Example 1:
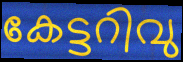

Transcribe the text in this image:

കേട്ടറിവു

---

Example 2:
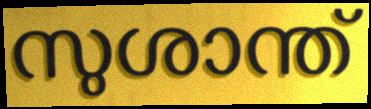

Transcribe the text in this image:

സുശാന്ത്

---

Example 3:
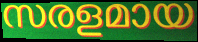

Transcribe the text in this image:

സരളമായ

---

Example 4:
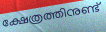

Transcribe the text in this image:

ക്ഷേത്രത്തിനുണ്ട്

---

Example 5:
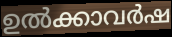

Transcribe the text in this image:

ഉൽക്കാവർഷ